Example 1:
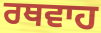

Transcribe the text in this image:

ਰਥਵਾਹ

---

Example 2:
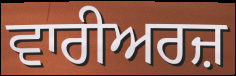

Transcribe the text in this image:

ਵਾਰੀਅਰਜ਼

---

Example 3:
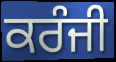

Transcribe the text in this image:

ਕਰੰਜੀ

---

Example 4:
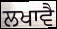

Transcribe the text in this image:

ਲਖਾਵੈ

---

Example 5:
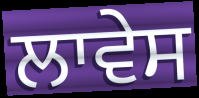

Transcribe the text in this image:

ਲਾਵੇਸ